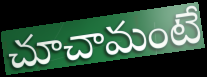
చూచామంటే